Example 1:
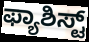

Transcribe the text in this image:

ಫ್ಯಾಶಿಸ್ಟ್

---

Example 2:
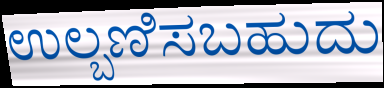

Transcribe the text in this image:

ಉಲ್ಬಣಿಸಬಹುದು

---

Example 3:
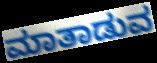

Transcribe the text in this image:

ಮಾತಾಡುವ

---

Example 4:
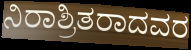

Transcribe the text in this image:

ನಿರಾಶ್ರಿತರಾದವರ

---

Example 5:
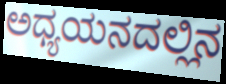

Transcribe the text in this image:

ಅಧ್ಯಯನದಲ್ಲಿನ